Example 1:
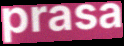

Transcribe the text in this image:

prasa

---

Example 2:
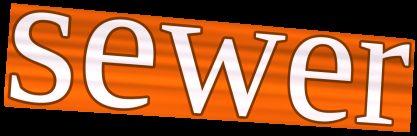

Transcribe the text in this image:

sewer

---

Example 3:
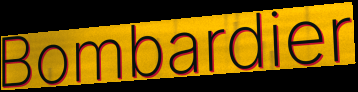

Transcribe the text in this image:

Bombardier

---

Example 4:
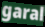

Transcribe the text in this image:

garal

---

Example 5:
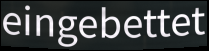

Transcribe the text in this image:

eingebettet